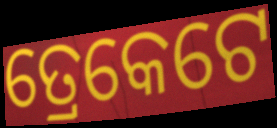
ତ୍ରେକେଟେ